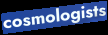
cosmologists